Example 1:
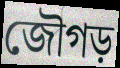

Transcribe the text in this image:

জৌগড়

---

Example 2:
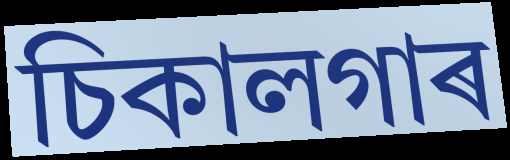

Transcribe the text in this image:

চিকালগাৰ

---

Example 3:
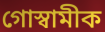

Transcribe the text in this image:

গোস্বামীক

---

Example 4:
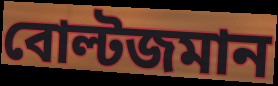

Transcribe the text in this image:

বোল্টজমান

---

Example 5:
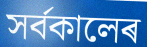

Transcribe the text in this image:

সৰ্বকালেৰ